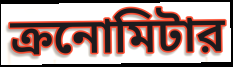
ক্রনোমিটার